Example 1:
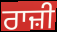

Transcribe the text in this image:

ਰਾਜ਼ੀ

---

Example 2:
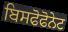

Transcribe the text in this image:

ਬਿਸਫੋਫੋਨੇਟ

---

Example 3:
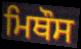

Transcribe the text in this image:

ਮਿਥੌਸ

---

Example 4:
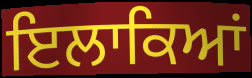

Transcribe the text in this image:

ਇਲਾਕਿਆਂ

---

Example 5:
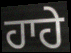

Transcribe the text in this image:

ਹਾਹੇ